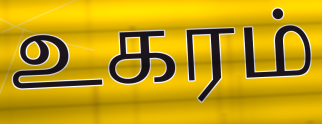
உகரம்